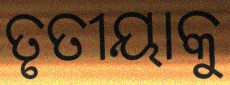
ତୃତୀୟାକୁ